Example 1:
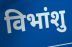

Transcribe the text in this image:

विभांशु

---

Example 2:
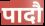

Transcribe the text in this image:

पादौ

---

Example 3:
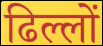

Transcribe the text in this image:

ढिल्लों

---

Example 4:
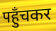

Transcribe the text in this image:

पहुँचकर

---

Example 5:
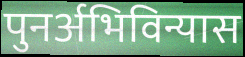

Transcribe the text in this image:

पुनर्अभिविन्यास